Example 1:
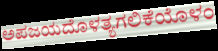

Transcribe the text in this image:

ಅಪಜಯದೊಳತ್ಯಗಲಿಕೆಯೊಳಂ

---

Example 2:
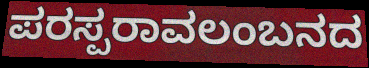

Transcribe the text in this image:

ಪರಸ್ಪರಾವಲಂಬನದ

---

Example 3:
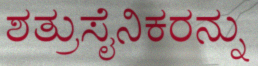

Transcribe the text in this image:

ಶತ್ರುಸೈನಿಕರನ್ನು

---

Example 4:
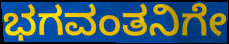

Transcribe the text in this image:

ಭಗವಂತನಿಗೇ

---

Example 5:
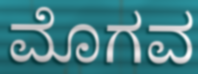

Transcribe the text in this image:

ಮೊಗವ